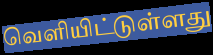
வெளியிட்டுள்ளது